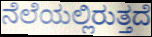
ನೆಲೆಯಲ್ಲಿರುತ್ತದೆ